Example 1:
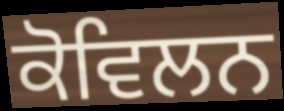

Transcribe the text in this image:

ਕੋਵਿਲਨ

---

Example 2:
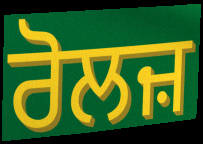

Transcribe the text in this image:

ਰੋਲਜ਼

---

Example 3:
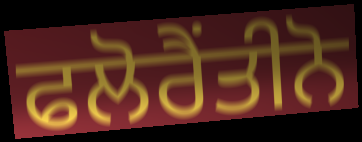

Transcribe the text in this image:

ਫਲੋਰੈਂਤੀਨੋ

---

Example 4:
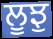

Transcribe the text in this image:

ਲੂਝੁ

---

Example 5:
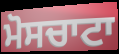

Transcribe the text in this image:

ਮੋਸਚਾਟਾ